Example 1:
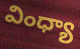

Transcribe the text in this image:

వింధ్యా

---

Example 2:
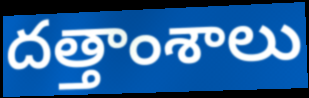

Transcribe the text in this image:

దత్తాంశాలు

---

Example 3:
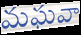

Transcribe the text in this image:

మఘవా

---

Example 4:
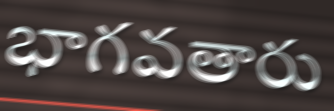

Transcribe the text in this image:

భాగవతారు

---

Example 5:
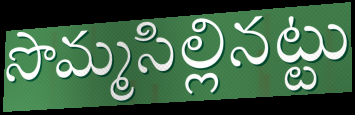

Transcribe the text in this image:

సొమ్మసిల్లినట్టు